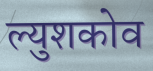
ल्युशकोव